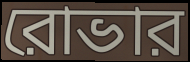
রোভার